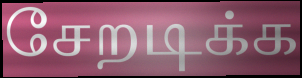
சேறடிக்க